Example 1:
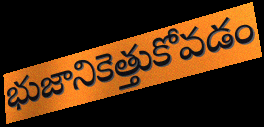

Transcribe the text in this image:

భుజానికెత్తుకోవడం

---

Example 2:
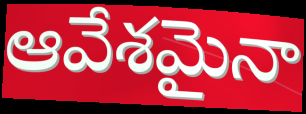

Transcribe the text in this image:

ఆవేశమైనా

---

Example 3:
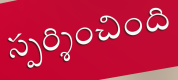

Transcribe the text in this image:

స్పర్శించింది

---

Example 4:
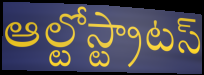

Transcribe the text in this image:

ఆల్టోస్ట్రాటస్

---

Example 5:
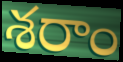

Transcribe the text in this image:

శరాం